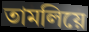
তামলিয়ে